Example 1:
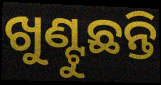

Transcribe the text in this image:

ଖୁଣ୍ଟୁଛନ୍ତି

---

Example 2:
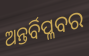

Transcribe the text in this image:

ଅନ୍ତର୍ବିପ୍ଳବର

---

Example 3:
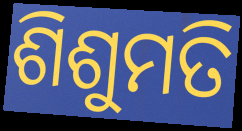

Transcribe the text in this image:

ଶିଶୁମତି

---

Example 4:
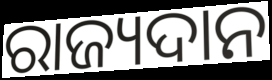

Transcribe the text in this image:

ରାଜ୍ୟଦାନ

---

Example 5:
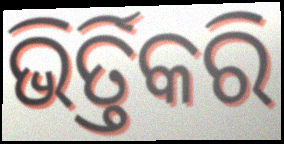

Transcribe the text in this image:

ଭିର୍ତ୍ତିକରି